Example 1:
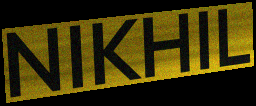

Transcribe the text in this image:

NIKHIL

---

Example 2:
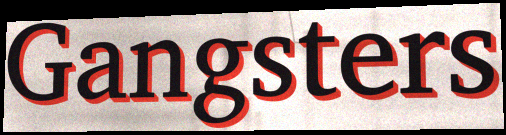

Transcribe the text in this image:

Gangsters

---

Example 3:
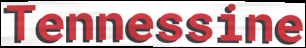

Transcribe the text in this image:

Tennessine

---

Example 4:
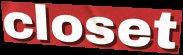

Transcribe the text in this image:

closet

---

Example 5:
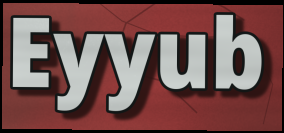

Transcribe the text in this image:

Eyyub